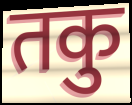
तकु